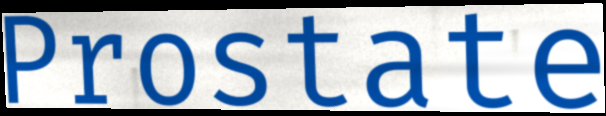
Prostate